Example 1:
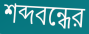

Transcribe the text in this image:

শব্দবন্ধের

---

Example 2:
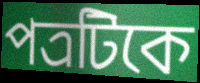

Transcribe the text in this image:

পত্রটিকে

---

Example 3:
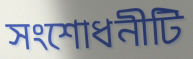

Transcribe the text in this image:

সংশোধনীটি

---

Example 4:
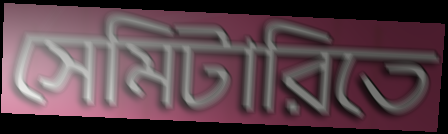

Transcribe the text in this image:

সেমিটারিতে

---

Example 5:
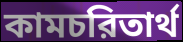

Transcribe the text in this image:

কামচরিতার্থ